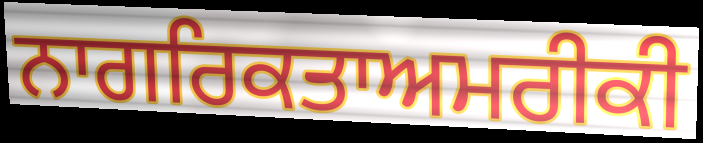
ਨਾਗਰਿਕਤਾਅਮਰੀਕੀ